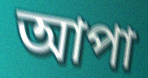
আপা